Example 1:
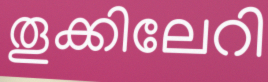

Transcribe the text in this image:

തൂക്കിലേറി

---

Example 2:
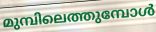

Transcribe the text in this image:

മുമ്പിലെത്തുമ്പോൾ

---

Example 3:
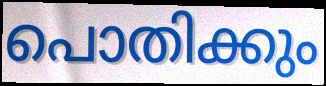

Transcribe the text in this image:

പൊതിക്കും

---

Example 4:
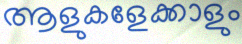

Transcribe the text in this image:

ആളുകളേക്കാളും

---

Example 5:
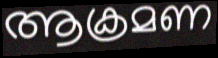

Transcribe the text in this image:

ആക്രമണ